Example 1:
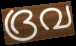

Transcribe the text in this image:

ദ്രവ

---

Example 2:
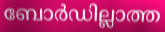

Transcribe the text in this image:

ബോർഡില്ലാത്ത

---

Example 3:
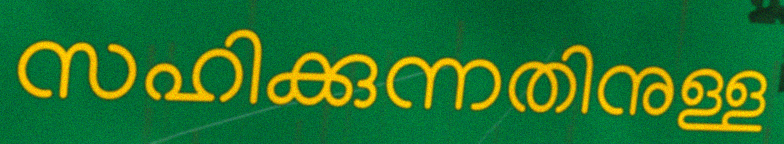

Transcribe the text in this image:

സഹിക്കുന്നതിനുള്ള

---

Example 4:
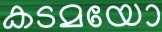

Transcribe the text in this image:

കടമയോ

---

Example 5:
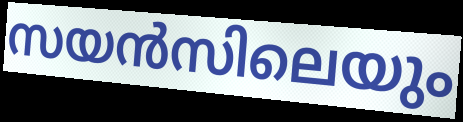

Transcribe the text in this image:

സയൻസിലെയും